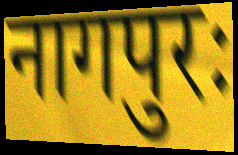
नागपुरः